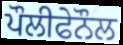
ਪੌਲੀਫੇਨੌਲ